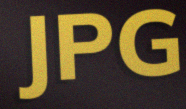
JPG